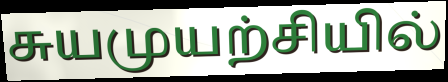
சுயமுயற்சியில்